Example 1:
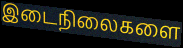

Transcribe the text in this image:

இடைநிலைகளை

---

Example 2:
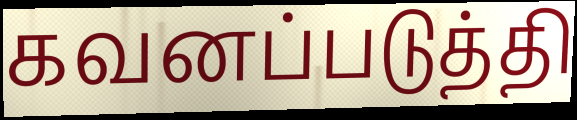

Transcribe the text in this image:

கவனப்படுத்தி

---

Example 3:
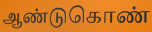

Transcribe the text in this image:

ஆண்டுகொண்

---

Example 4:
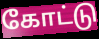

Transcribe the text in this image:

கோட்டு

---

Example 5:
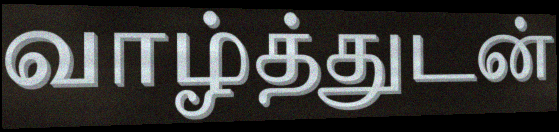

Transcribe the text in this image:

வாழ்த்துடன்